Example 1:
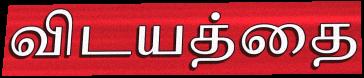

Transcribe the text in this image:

விடயத்தை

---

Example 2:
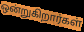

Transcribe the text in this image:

ஒன்றுகிறார்கள்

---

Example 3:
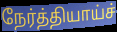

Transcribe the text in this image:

நேர்த்தியாய்ச்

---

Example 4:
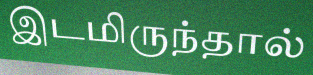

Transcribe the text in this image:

இடமிருந்தால்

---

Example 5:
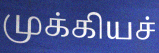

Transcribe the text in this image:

முக்கியச்